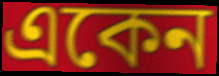
একেন